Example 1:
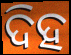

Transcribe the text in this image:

ଦିହ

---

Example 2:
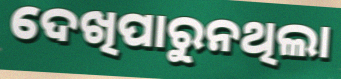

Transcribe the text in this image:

ଦେଖିପାରୁନଥିଲା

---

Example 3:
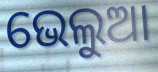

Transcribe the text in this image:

ଭେଲୁଆ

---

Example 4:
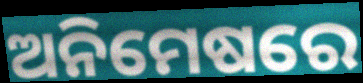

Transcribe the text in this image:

ଅନିମେଷରେ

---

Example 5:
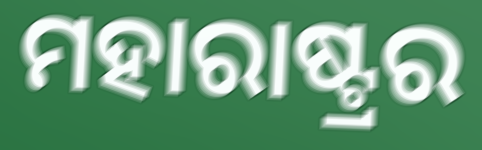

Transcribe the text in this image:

ମହାରାଷ୍ଟ୍ରର